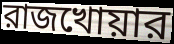
রাজখোয়ার